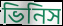
ভিনিস